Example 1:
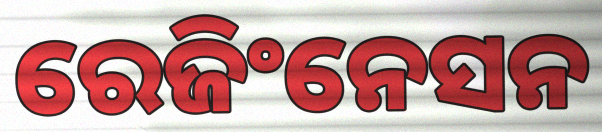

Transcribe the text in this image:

ରେଜିଂନେସନ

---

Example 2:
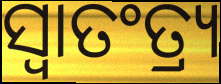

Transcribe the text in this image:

ସ୍ଵାତଂତ୍ର୍ୟ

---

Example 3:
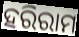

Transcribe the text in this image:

ହରିରାମ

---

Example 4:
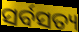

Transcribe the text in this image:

ସର୍ବସତ୍ୟ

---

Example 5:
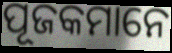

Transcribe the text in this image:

ପୂଜକମାନେ